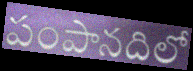
పంపానదిలో